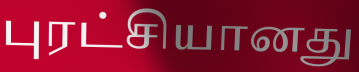
புரட்சியானது